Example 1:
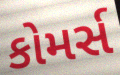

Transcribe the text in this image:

કોમર્સ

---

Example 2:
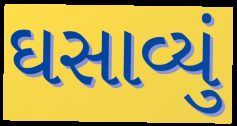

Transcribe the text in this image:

ઘસાવ્યું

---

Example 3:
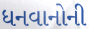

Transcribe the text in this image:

ધનવાનોની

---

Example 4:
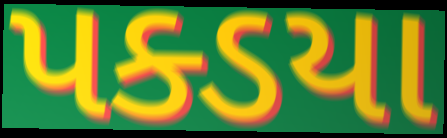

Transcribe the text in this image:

પક્ડયા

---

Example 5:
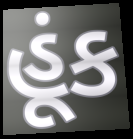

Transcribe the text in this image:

હૂંક